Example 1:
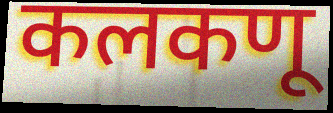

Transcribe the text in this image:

कलकणू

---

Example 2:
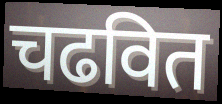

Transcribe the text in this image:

चढवित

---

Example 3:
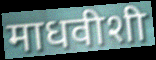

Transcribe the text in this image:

माधवीशी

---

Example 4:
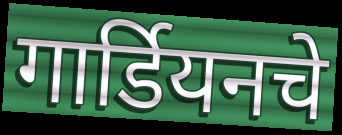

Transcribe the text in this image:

गार्डियनचे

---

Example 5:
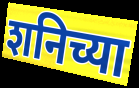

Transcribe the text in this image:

शनिच्या